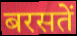
बरसतें